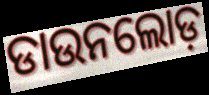
ଡାଉନଲୋଡ଼